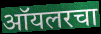
ऑयलरचा